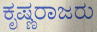
ಕೃಷ್ಣರಾಜರು